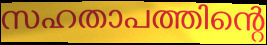
സഹതാപത്തിന്റെ